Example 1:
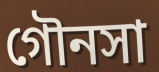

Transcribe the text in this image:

গৌনসা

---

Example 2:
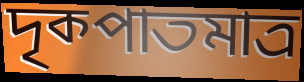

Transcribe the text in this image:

দৃক্পাতমাত্র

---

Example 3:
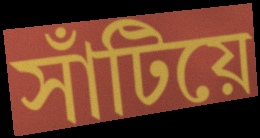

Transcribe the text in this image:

সাঁটিয়ে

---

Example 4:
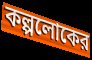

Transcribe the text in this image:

কল্পলোকের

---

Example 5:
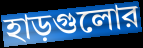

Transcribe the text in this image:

হাড়গুলোর